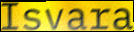
Isvara